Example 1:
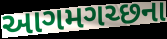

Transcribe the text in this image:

આગમગચ્છના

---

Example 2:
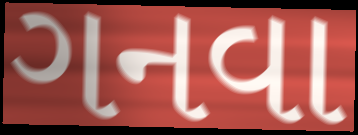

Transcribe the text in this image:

ગનવા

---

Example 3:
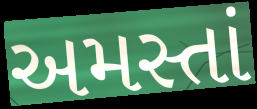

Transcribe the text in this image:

અમસ્તાં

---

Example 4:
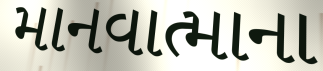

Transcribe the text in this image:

માનવાત્માના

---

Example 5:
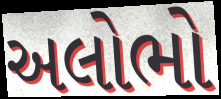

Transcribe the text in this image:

અલોભો